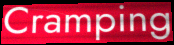
Cramping